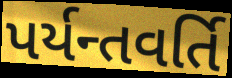
પર્યન્તવર્તિ